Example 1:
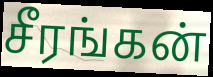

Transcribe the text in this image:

சீரங்கன்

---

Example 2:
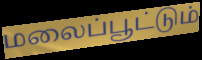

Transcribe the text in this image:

மலைப்பூட்டும்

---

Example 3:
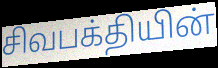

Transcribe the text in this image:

சிவபக்தியின்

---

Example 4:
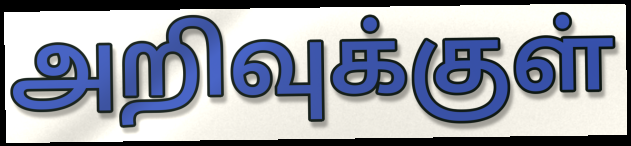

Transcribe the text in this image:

அறிவுக்குள்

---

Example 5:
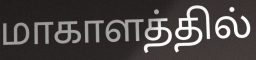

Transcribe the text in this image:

மாகாளத்தில்